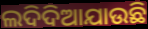
ଲଦିଦିଆଯାଉଛି